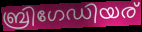
ബ്രിഗേഡിയര്